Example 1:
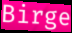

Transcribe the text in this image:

Birge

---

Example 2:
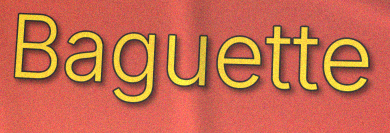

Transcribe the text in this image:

Baguette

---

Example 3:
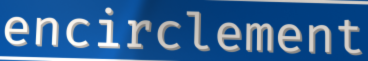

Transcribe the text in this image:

encirclement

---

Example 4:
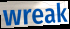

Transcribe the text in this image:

wreak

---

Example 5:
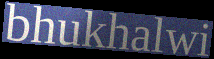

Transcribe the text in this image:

bhukhalwi